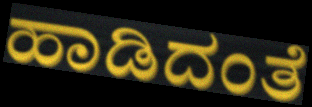
ಹಾಡಿದಂತೆ